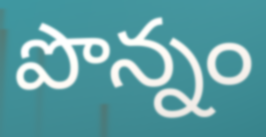
పొన్నం